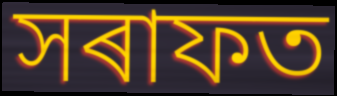
সৰাফত